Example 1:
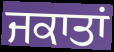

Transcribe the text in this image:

ਜਕਾਤਾਂ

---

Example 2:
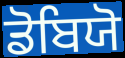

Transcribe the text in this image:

ਡੋਬਿਯੋ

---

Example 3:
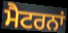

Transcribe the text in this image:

ਮੈਟਰਨਾਂ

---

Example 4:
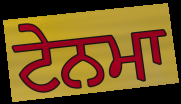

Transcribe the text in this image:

ਟੇਨਮਾ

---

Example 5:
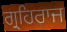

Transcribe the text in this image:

ਗ੍ਰਹਿਰਾਜ